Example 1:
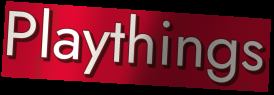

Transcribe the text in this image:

Playthings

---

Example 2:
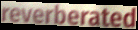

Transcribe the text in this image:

reverberated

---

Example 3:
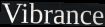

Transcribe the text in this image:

Vibrance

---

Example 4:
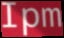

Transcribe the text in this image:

Ipm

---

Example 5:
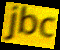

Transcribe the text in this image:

jbc